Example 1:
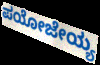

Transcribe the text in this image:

ಪಯೋಜೇಯ್ಯ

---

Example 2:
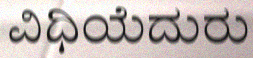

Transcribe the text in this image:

ವಿಧಿಯೆದುರು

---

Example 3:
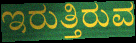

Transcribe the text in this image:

ಇರುತ್ತಿರುವ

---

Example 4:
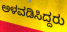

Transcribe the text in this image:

ಅಳವಡಿಸಿದ್ದರು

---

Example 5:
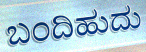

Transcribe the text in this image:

ಬಂದಿಹುದು